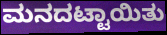
ಮನದಟ್ಟಾಯಿತು